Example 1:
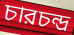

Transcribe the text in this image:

চারচন্দ্র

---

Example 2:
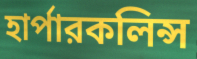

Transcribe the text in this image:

হার্পারকলিন্স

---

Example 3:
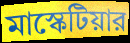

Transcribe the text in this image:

মাস্কেটিয়ার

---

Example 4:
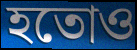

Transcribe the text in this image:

হতোও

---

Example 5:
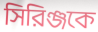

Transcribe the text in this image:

সিরিঞ্জকে